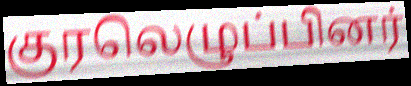
குரலெழுப்பினர்